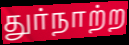
துர்நாற்ற